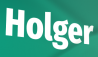
Holger